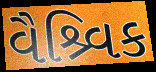
વૈશ્ર્વિક